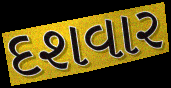
દશવાર